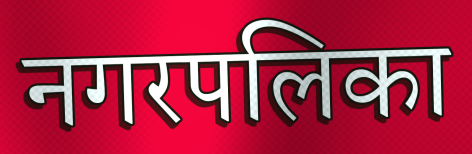
नगरपलिका